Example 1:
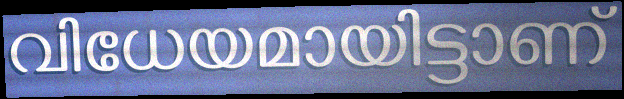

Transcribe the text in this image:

വിധേയമായിട്ടാണ്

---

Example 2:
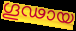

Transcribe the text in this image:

ഗൂഢായ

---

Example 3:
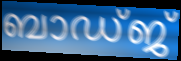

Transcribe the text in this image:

ബാഡ്ജ്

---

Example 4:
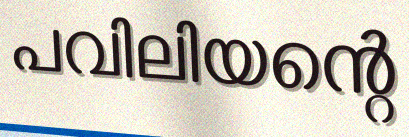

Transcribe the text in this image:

പവിലിയന്റെ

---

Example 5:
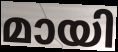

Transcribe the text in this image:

മായി